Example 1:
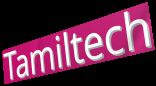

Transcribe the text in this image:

Tamiltech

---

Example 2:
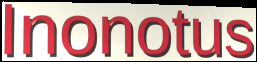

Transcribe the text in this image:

Inonotus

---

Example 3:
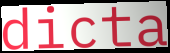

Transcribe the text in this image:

dicta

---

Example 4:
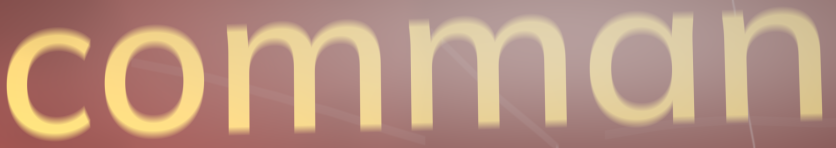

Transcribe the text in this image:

comman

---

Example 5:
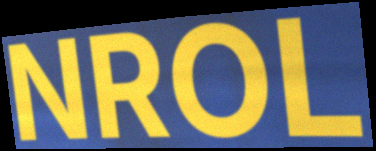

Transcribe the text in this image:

NROL